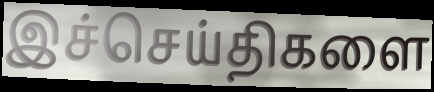
இச்செய்திகளை